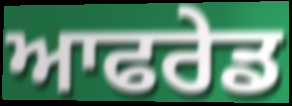
ਆਫਰੇਡ